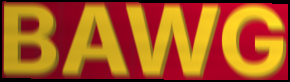
BAWG